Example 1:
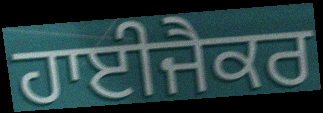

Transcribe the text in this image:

ਹਾਈਜੈਕਰ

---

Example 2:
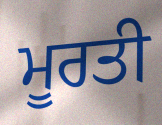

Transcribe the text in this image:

ਮੂਰਤੀ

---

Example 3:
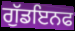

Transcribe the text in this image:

ਗੁੱਡਇਨਫ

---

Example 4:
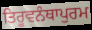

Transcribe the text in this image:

ਤਿਰੂਵਨੰਥਾਪੁਰਮ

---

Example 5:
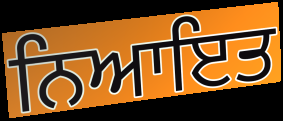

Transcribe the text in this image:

ਨਿਆਇਤ